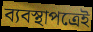
ব্যবস্থাপত্রেই